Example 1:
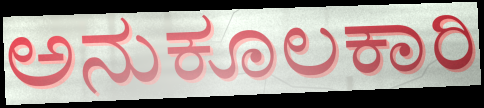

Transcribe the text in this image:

ಅನುಕೂಲಕಾರಿ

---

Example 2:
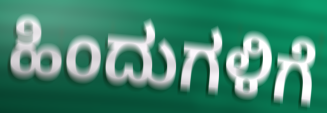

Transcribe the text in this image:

ಹಿಂದುಗಳಿಗೆ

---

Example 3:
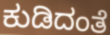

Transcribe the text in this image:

ಕುಡಿದಂತೆ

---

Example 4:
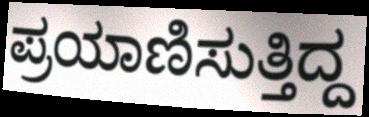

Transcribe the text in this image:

ಪ್ರಯಾಣಿಸುತ್ತಿದ್ದ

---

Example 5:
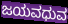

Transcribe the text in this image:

ಜಯವಧುವ